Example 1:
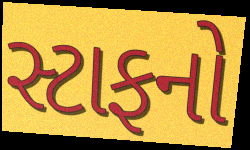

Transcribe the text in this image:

સ્ટાફનો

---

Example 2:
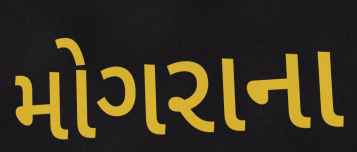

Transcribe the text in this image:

મોગરાના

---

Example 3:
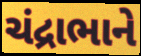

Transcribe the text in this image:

ચંદ્રાભાને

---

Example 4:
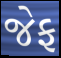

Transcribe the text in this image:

જેફ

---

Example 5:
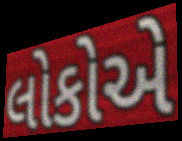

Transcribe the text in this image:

લોકોએ